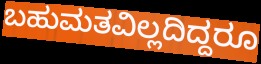
ಬಹುಮತವಿಲ್ಲದಿದ್ದರೂ